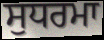
ਸੁਧਰਮਾ